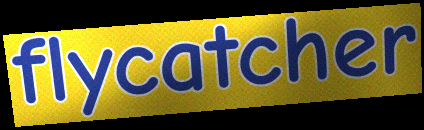
flycatcher